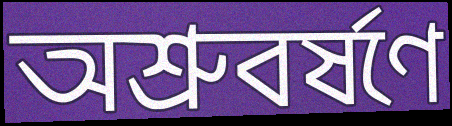
অশ্রুবর্ষণে